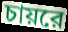
চায়রে